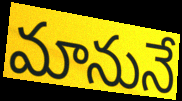
మానునే